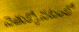
వెతుక్కోవటంలో